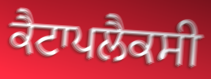
ਕੈਟਾਪਲੈਕਸੀ